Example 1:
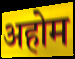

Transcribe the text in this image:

अहोम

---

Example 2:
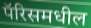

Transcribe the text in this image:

पॅरिसमधील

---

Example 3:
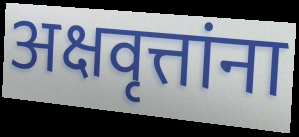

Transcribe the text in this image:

अक्षवृत्तांना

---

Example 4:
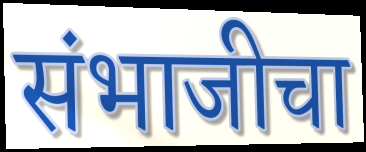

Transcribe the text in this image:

संभाजीचा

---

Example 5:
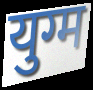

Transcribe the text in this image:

युग्म